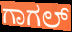
ಗಾಗಲ್